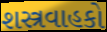
શસ્ત્રવાહકો